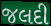
જલદી